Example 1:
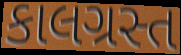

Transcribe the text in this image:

કાલગ્રસ્ત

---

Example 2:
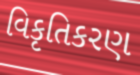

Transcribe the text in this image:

વિકૃતિકરણ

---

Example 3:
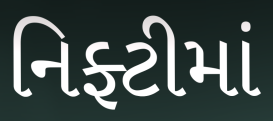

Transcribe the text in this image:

નિફ્ટીમાં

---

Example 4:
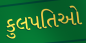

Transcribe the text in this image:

કુલપતિઓ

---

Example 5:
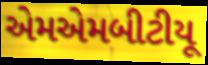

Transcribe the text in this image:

એમએમબીટીયૂ